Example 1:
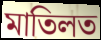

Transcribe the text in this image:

মাতিলত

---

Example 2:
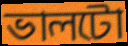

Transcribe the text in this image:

ভালটো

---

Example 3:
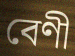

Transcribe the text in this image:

বেণী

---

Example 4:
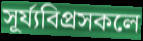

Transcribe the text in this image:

সূৰ্য্যবিপ্ৰসকলে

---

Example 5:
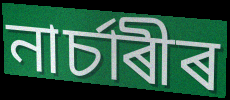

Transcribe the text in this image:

নাৰ্চাৰীৰ